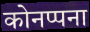
कोनप्पना